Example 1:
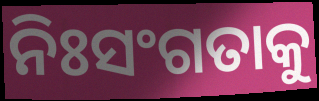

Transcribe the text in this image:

ନିଃସଂଗତାକୁ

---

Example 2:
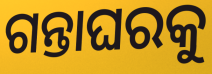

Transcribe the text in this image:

ଗନ୍ତାଘରକୁ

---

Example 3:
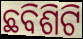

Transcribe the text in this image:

ଛବିଶିଟି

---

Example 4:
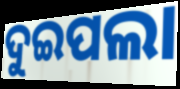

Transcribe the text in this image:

ଦୁଇପଲା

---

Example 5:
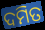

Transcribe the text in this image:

ଦମିତ